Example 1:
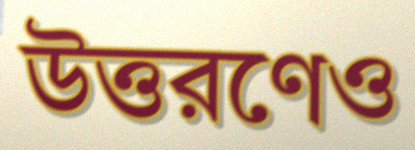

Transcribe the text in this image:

উত্তরণেও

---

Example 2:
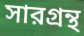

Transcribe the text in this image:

সারগ্রন্থ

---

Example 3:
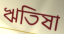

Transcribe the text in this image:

ঋতিষা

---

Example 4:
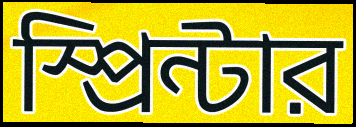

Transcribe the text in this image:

স্প্রিন্টার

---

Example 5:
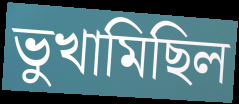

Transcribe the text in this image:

ভুখামিছিল